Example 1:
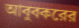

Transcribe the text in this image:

আবুবকরের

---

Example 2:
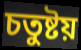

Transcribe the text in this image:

চতুষ্টয়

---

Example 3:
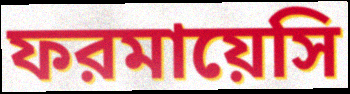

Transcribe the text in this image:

ফরমায়েসি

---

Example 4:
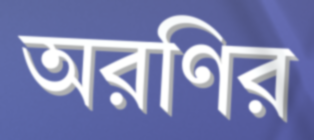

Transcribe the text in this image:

অরণির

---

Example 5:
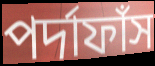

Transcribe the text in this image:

পর্দাফাঁস